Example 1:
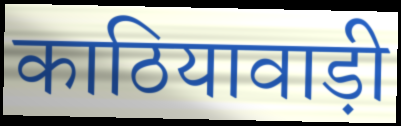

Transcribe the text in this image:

काठियावाड़ी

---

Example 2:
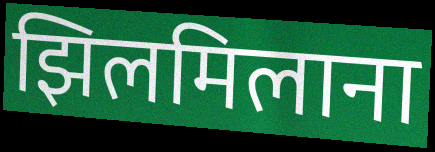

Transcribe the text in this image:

झिलमिलाना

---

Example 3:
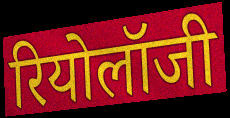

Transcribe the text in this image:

रियोलॉजी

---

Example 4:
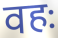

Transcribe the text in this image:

वहः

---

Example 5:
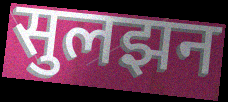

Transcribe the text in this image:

सुलझन